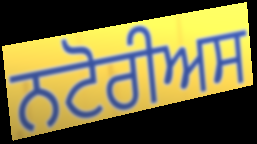
ਨਟੋਰੀਅਸ